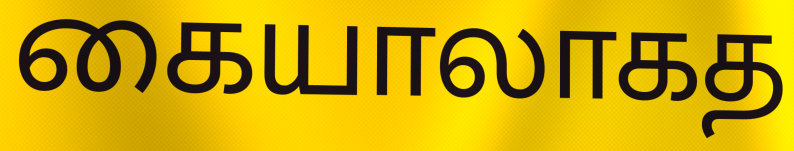
கையாலாகத